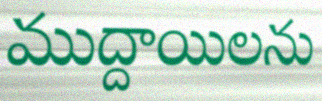
ముద్దాయిలను